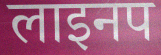
लाइनप